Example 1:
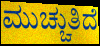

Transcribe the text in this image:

ಮುಚ್ಚುತಿದೆ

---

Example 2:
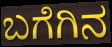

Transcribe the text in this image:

ಬಗೆಗಿನ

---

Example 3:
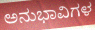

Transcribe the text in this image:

ಅನುಭಾವಿಗಳ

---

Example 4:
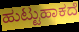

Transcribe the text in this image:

ಹುಟ್ಟುಹಾಕದೆ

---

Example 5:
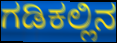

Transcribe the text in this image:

ಗಡಿಕಲ್ಲಿನ